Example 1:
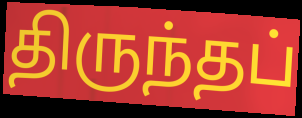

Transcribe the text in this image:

திருந்தப்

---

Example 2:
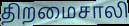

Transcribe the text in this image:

திறமைசாலி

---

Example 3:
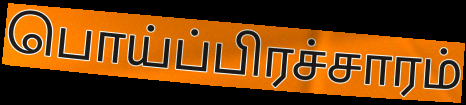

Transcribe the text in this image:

பொய்ப்பிரச்சாரம்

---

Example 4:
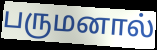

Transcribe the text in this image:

பருமனால்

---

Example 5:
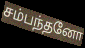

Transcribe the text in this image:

சம்பந்தனோ